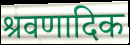
श्रवणादिक